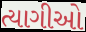
ત્યાગીઓ